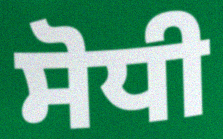
ਸੋਧੀ